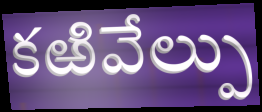
కఱివేల్పు